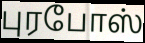
புரபோஸ்